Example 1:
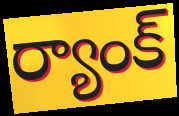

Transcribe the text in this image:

ర్యాంక్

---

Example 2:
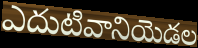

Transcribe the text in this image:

ఎదుటివానియెడల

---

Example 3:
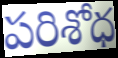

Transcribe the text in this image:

పరిశోధ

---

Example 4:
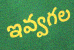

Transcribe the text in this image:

ఇవ్వగల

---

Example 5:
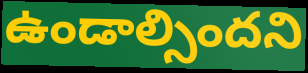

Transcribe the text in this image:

ఉండాల్సిందని